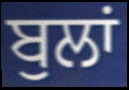
ਬੁਲਾਂ